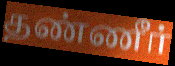
தண்ணீர்